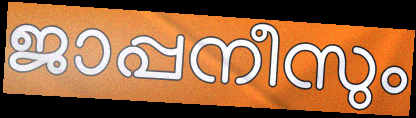
ജാപ്പനീസും